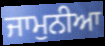
ਜਾਮੁਨੀਆ